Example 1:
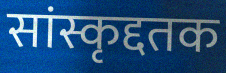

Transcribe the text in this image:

सांस्कृद्दतक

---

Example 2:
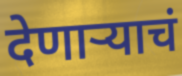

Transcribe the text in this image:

देणाऱ्याचं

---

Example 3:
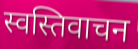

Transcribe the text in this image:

स्वस्तिवाचन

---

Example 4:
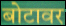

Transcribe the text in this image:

बोटावर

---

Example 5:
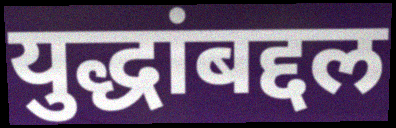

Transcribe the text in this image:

युद्धांबद्दल